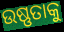
ଉଷ୍ଣତାକୁ